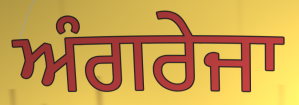
ਅੰਗਰੇਜਾ